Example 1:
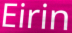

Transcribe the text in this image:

Eirin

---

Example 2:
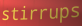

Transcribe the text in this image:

stirrups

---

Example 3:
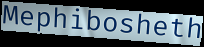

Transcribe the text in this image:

Mephibosheth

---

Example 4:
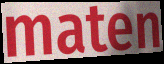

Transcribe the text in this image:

maten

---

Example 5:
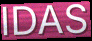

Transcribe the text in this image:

IDAS